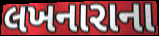
લખનારાના